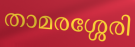
താമരശ്ശേരി